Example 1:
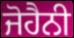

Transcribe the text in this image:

ਜੋਹੈਨੀ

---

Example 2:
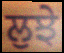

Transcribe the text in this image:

ਲੁਝੇ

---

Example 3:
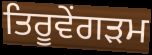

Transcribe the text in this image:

ਤਿਰੂਵੇਂਗੜਮ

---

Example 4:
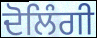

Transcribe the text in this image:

ਦੋਲਿੰਗੀ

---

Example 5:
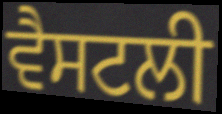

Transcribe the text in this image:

ਵੈਸਟਲੀ